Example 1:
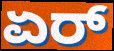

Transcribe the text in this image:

ಏರ್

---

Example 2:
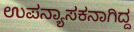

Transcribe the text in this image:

ಉಪನ್ಯಾಸಕನಾಗಿದ್ದ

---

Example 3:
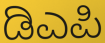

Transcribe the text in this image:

ಡಿಎಪಿ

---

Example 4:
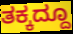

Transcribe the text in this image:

ತಕ್ಕದ್ದೂ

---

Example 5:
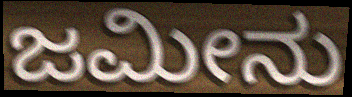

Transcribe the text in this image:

ಜಮೀನು